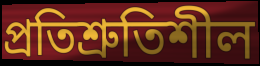
প্রতিশ্রুতিশীল